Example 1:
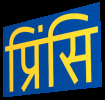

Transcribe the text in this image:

प्रिंसि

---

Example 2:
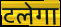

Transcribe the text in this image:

टलेगा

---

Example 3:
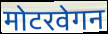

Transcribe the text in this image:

मोटरवेगन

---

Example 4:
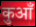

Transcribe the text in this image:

कुआँ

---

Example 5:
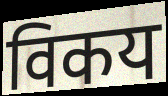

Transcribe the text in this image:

विकय